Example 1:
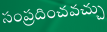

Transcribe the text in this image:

సంప్రదించవచ్చు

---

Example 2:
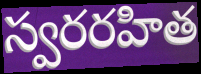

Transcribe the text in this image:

స్వరరహిత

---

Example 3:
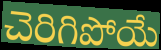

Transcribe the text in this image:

చెరిగిపోయే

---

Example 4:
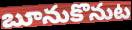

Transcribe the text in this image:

బూనుకొనుట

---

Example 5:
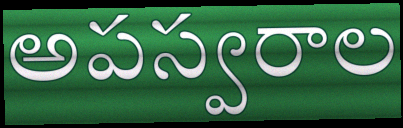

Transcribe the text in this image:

అపస్వరాల